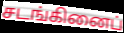
சடங்கினைப்